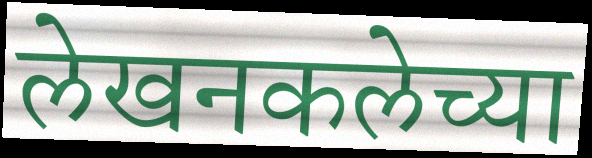
लेखनकलेच्या